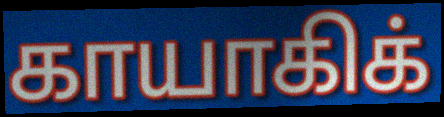
காயாகிக்